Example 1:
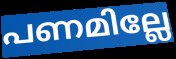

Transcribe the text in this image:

പണമില്ലേ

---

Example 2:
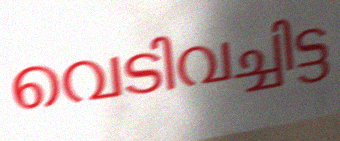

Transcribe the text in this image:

വെടിവച്ചിട്ട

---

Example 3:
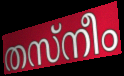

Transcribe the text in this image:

തസ്നീം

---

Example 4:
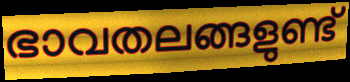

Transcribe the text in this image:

ഭാവതലങ്ങളുണ്ട്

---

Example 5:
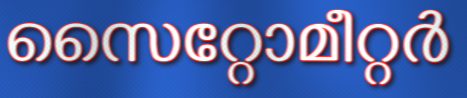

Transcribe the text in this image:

സൈറ്റോമീറ്റർ